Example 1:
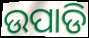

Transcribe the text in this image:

ଉପାଡି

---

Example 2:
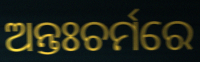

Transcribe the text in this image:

ଅନ୍ତଃଚର୍ମରେ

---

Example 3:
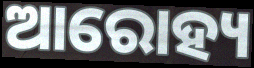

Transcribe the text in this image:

ଆରୋହ୍ୟ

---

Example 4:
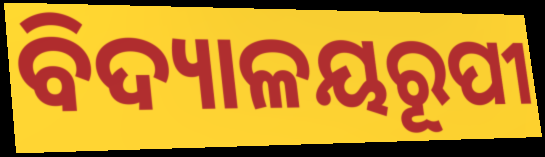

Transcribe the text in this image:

ବିଦ୍ୟାଳୟରୂପୀ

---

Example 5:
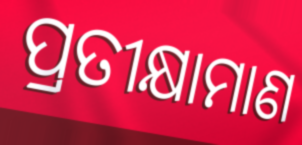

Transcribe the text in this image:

ପ୍ରତୀକ୍ଷାମାଣ